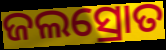
ଜଲସ୍ରୋତ